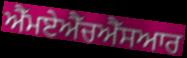
ਐੱਮਏਐੱਚਐੱਸਆਰ